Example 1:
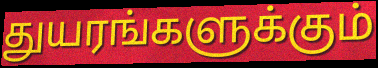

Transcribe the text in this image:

துயரங்களுக்கும்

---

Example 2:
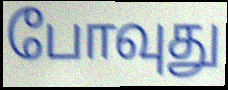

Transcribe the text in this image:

போவுது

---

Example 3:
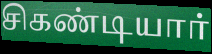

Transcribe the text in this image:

சிகண்டியார்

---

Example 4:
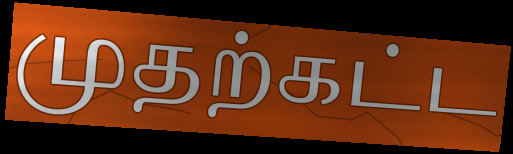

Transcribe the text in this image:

முதற்கட்ட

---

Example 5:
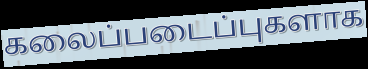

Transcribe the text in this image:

கலைப்படைப்புகளாக